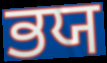
ਭਯ